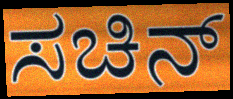
ಸಚಿನ್